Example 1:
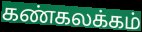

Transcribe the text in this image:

கண்கலக்கம்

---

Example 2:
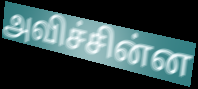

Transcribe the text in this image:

அவிச்சின்ன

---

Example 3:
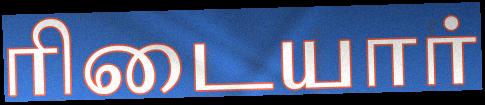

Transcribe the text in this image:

ரிடையார்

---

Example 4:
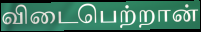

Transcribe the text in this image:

விடைபெற்றான்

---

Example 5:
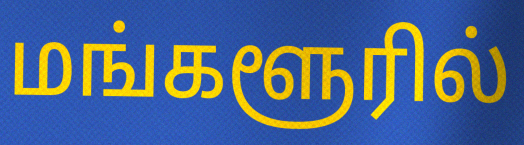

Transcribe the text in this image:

மங்களூரில்